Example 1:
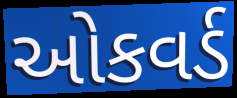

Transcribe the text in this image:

ઓકવર્ડ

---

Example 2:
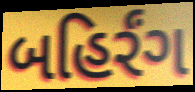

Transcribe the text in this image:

બહિર્રંગ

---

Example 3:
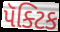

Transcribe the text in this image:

પૅક્ટિક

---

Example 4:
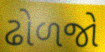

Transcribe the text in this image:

ઢોળજો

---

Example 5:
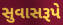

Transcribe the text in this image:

સુવાસરૂપે